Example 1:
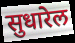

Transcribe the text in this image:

सुधारेल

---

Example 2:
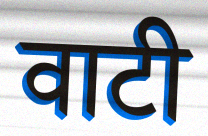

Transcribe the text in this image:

वाटी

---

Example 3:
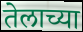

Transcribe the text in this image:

तेलाच्या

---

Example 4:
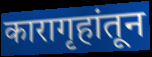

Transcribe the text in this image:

कारागृहांतून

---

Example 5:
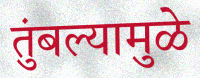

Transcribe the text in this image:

तुंबल्यामुळे